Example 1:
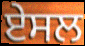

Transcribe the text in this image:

ਏਸਲ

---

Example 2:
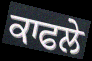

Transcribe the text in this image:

ਕਾਫਲੇ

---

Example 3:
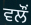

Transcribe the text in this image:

ਵਲੌੰ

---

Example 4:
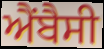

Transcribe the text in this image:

ਐਂਬੈਸੀ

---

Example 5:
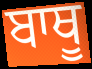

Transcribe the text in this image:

ਬਾਥੂ